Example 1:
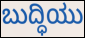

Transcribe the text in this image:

ಬುದ್ಧಿಯು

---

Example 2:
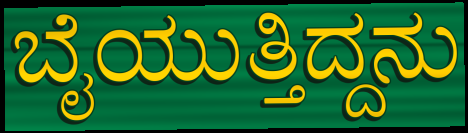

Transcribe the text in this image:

ಬೈಯುತ್ತಿದ್ದನು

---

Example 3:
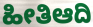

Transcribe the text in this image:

ಹೀತಿಆದಿ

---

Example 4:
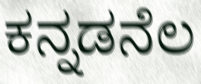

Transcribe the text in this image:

ಕನ್ನಡನೆಲ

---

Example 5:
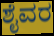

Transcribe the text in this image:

ಶೈವರ